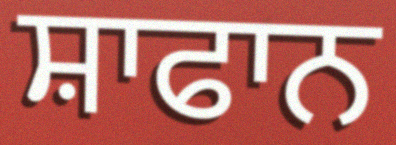
ਸ਼ਾਫਾਨ